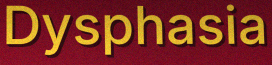
Dysphasia